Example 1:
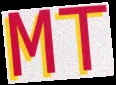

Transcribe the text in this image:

MT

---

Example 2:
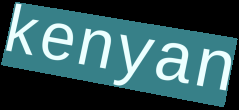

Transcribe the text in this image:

kenyan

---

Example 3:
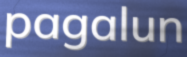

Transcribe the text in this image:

pagalun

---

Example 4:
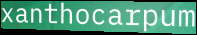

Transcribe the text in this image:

xanthocarpum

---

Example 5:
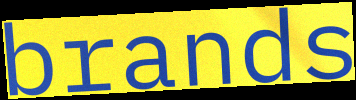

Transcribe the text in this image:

brands